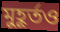
মুহূর্তও